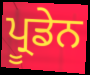
ਪ੍ਰੂਡੇਨ